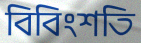
বিবিংশতি